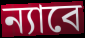
ন্যাবে